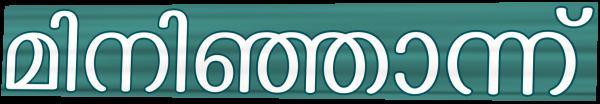
മിനിഞ്ഞാന്ന്